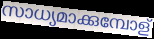
സാധ്യമാക്കുമ്പോള്